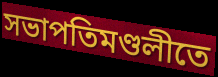
সভাপতিমণ্ডলীতে